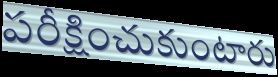
పరీక్షించుకుంటారు